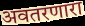
अवतरणारा